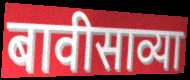
बावीसाव्या